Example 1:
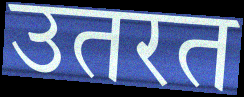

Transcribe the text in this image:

उतरत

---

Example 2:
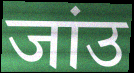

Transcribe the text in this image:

जांउ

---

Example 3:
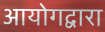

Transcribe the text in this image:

आयोगद्वारा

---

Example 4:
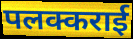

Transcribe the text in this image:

पलक्कराई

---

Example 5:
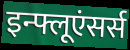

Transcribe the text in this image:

इन्फ्लूएंसर्स